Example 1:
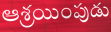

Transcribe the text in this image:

ఆశ్రయింపుడు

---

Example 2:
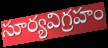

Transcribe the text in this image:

సూర్యవిగ్రహం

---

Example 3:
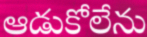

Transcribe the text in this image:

ఆడుకోలేను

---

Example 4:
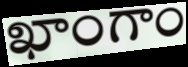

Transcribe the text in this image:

ఖాంగాం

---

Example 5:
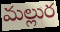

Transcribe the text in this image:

మల్లుర